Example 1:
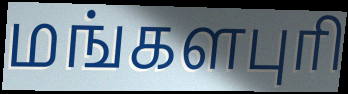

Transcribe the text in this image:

மங்களபுரி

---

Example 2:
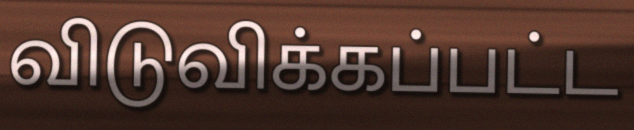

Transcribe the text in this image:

விடுவிக்கப்பட்ட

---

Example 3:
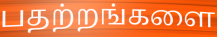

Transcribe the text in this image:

பதற்றங்களை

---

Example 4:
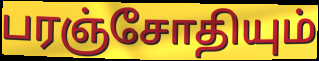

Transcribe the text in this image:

பரஞ்சோதியும்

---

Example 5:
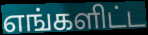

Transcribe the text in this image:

எங்களிட்ட